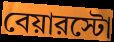
বেয়ারস্টো